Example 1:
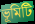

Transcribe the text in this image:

ভূমিটি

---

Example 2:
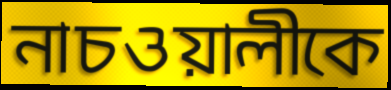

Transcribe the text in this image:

নাচওয়ালীকে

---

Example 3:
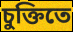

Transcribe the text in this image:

চুক্তিতে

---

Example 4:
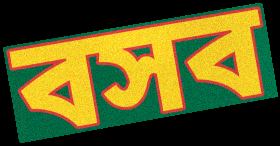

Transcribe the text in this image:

বসব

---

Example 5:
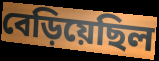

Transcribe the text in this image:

বেড়িয়েছিল